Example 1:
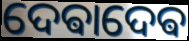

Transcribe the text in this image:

ଦେଵାଦେଵ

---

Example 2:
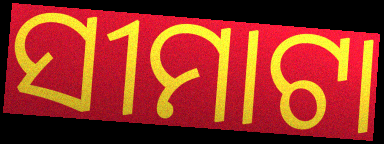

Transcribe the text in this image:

ସୀମାଟା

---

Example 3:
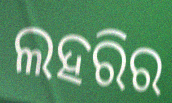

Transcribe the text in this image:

ଲହରିର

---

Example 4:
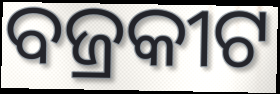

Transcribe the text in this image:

ବଜ୍ରକୀଟ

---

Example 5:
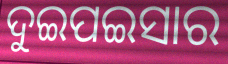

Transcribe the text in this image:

ଦୁଇପଇସାର